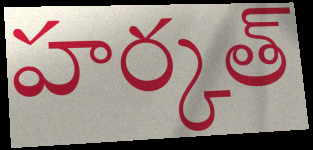
హర్కత్